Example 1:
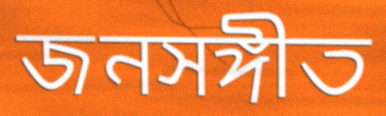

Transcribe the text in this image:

জনসঙ্গীত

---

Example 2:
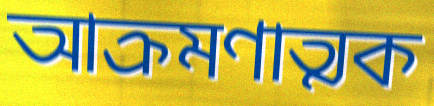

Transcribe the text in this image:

আক্ৰমণাত্মক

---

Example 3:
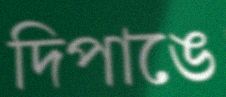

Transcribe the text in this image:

দিপাঙে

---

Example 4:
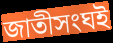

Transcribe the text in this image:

জাতীসংঘই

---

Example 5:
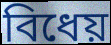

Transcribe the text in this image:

বিধেয়